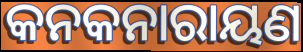
କନକନାରାୟଣ